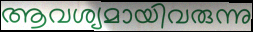
ആവശ്യമായിവരുന്നു